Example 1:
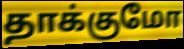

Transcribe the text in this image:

தாக்குமோ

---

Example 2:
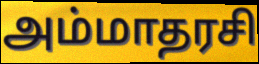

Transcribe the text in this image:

அம்மாதரசி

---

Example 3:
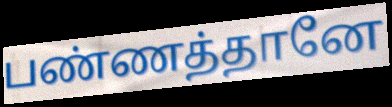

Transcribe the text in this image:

பண்ணத்தானே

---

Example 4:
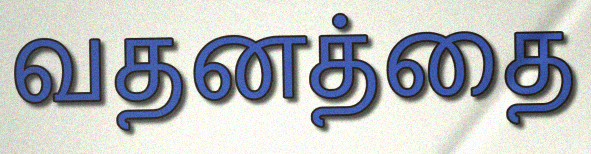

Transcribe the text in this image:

வதனத்தை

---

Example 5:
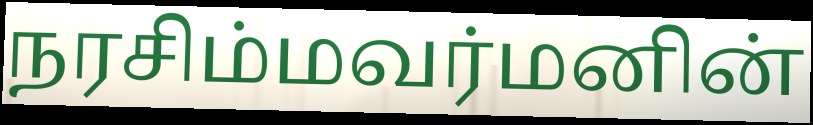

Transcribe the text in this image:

நரசிம்மவர்மனின்